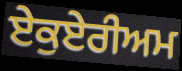
ਏਕੁਏਰੀਅਮ